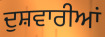
ਦੁਸ਼ਵਾਰੀਆਂ